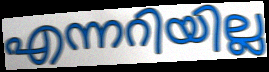
എന്നറിയില്ല